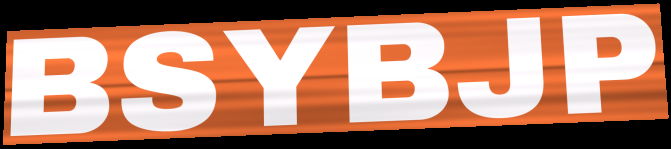
BSYBJP